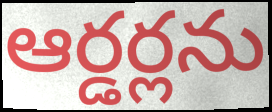
ఆర్డర్లను